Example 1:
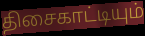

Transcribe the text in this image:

திசைகாட்டியும்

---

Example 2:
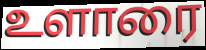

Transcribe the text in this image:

உளாரை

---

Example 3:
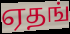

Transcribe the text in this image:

ஏதங்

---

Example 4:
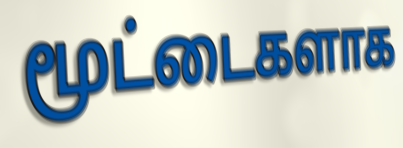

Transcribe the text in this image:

மூட்டைகளாக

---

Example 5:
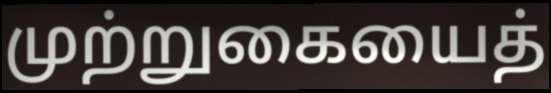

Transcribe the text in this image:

முற்றுகையைத்